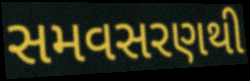
સમવસરણથી